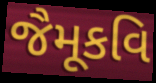
જૈમૂકવિ